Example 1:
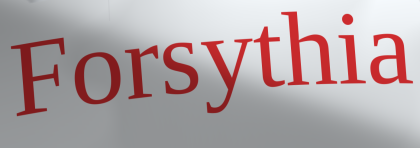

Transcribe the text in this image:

Forsythia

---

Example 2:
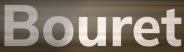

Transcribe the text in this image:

Bouret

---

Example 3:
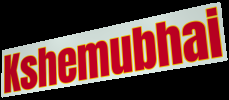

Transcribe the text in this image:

Kshemubhai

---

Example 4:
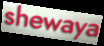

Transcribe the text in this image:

shewaya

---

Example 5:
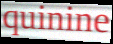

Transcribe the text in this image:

quinine